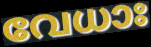
വേധാഃ